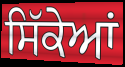
ਸਿੱਕੇਆਂ